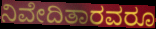
ನಿವೇದಿತಾರವರೂ